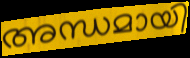
അന്ധമായി